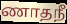
ணாதநீ